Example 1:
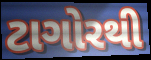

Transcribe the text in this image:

ટાગોરથી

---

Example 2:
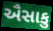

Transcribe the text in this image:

ઐસાકુ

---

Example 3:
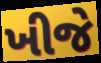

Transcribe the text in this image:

ખીજે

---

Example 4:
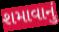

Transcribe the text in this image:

શમાવાનું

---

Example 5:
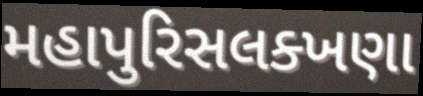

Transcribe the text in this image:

મહાપુરિસલક્ખણા